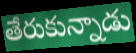
తేరుకున్నాడు